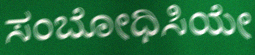
ಸಂಬೋಧಿಸಿಯೇ